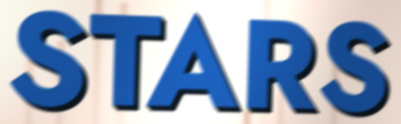
STARS